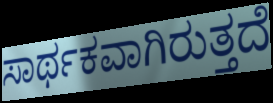
ಸಾರ್ಥಕವಾಗಿರುತ್ತದೆ